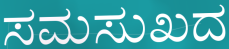
ಸಮಸುಖದ